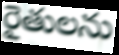
రైతులను